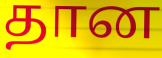
தான